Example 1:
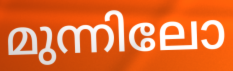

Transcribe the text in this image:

മുന്നിലോ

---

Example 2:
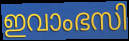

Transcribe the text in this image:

ഇവാംഭസി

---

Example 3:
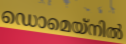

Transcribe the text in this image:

ഡൊമെയ്നിൽ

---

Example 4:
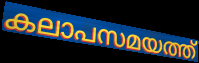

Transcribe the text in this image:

കലാപസമയത്ത്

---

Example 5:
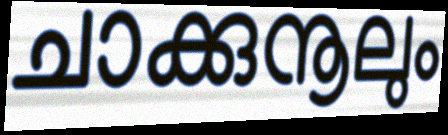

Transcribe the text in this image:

ചാക്കുനൂലും